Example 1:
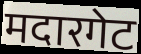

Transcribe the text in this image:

मदारगेट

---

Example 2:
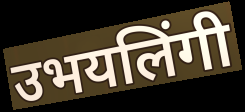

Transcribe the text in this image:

उभयलिंगी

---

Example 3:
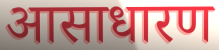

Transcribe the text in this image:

आसाधारण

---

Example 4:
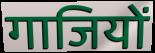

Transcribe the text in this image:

गाजियों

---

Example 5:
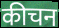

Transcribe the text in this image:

कीचन